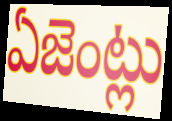
ఏజెంట్లు